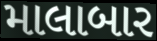
માલાબાર